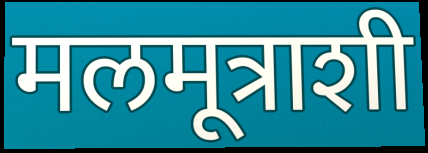
मलमूत्राशी